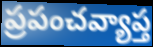
ప్రపంచవ్యాప్త